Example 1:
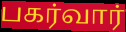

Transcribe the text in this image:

பகர்வார்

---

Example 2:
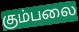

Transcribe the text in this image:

கும்பலை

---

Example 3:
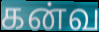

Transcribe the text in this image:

கன்வ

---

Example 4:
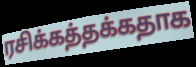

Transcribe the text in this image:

ரசிக்கத்தக்கதாக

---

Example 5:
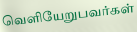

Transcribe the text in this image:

வெளியேறுபவர்கள்